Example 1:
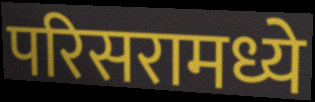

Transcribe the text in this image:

परिसरामध्ये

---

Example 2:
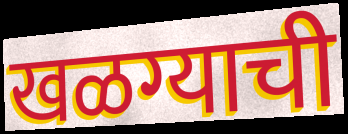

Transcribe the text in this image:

खळग्याची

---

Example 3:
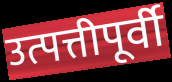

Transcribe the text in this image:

उत्पत्तीपूर्वी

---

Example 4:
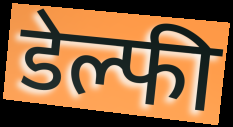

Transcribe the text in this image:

डेल्फी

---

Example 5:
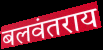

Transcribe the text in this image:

बलवंतराय